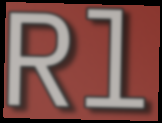
Rl